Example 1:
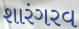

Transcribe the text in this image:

શારંગરવ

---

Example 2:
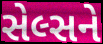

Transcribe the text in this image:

સેલ્સને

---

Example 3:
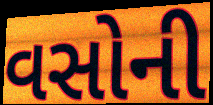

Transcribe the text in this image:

વસોની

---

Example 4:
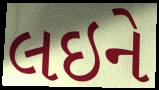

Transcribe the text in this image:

લઇને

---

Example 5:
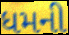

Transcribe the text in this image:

ધમની